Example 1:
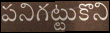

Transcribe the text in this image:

పనిగట్టుకొని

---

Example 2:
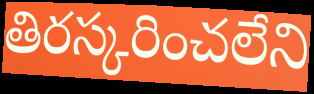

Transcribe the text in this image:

తిరస్కరించలేని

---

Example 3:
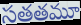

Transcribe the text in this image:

సతతమూ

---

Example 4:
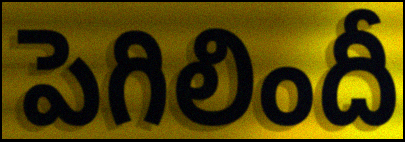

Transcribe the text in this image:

పెగిలిందీ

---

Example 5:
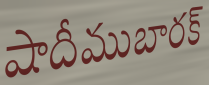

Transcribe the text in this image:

షాదీముబారక్